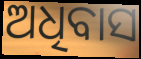
ଅଧିବାସ